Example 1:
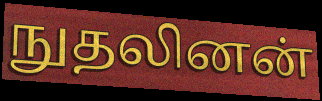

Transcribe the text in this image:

நுதலினன்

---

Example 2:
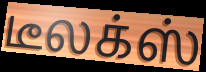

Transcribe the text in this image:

டீலக்ஸ்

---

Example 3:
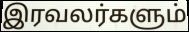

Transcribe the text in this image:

இரவலர்களும்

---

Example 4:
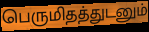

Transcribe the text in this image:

பெருமிதத்துடனும்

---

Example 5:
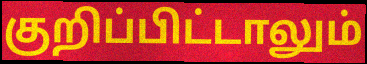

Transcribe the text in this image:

குறிப்பிட்டாலும்